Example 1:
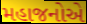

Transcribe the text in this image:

મહાજનોએ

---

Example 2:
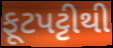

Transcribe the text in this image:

ફૂટપટ્ટીથી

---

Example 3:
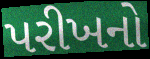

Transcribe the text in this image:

પરીખનો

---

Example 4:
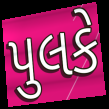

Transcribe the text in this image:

પુલકે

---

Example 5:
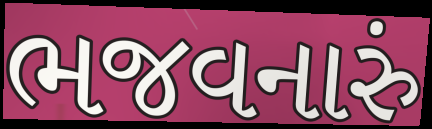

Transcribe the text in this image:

ભજવનારું